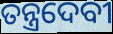
ତନ୍ତ୍ରଦେବୀ